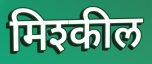
मिश्कील